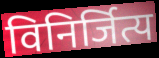
विनिर्जित्य